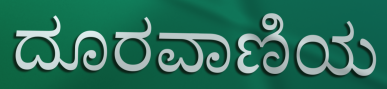
ದೂರವಾಣಿಯ